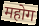
महोग